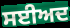
ਸਈਅਦ